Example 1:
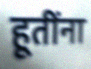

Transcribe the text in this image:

हूतींना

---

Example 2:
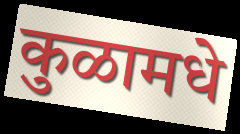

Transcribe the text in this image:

कुळामधे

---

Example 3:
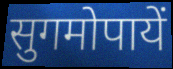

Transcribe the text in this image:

सुगमोपायें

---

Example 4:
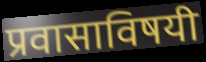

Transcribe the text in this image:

प्रवासाविषयी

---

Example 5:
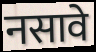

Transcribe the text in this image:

नसावे